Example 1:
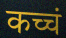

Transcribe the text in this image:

कच्चं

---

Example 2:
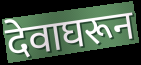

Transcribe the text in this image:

देवाघरून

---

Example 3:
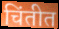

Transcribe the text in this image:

चिंतीत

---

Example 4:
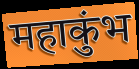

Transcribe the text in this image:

महाकुंभ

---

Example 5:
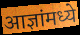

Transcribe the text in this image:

आज्ञांमध्ये